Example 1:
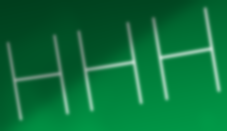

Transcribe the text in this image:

HHH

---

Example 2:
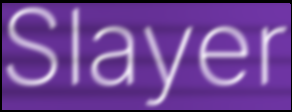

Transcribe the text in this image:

Slayer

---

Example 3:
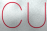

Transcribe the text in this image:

CU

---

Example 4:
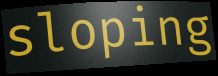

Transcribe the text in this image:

sloping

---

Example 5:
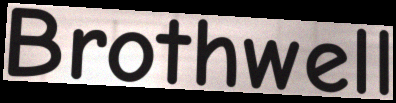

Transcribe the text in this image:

Brothwell